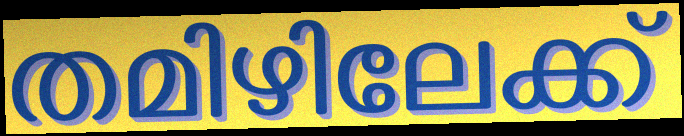
തമിഴിലേക്ക്